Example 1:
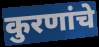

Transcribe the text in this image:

कुरणांचे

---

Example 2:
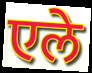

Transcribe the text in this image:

एले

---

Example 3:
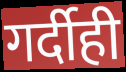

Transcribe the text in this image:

गर्दीही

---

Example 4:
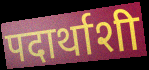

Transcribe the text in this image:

पदार्थाशी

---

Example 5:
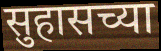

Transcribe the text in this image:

सुहासच्या